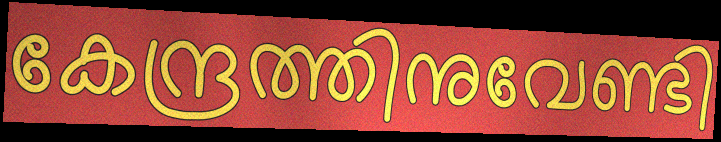
കേന്ദ്രത്തിനുവേണ്ടി